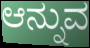
ಆನ್ನುವ